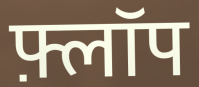
फ़्लॉप